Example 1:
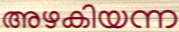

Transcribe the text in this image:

അഴകിയന്ന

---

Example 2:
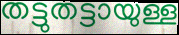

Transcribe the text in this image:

തട്ടുതട്ടായുള്ള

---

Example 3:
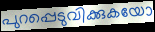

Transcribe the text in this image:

പുറപ്പെടുവിക്കുകയോ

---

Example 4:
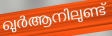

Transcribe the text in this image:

ഖുർആനിലുണ്ട്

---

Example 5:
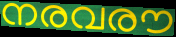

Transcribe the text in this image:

നരവരൗ